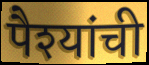
पैश्यांची